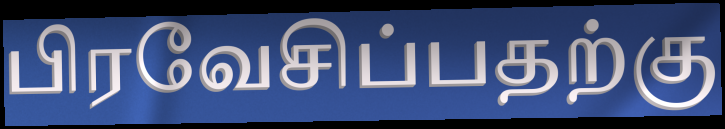
பிரவேசிப்பதற்கு